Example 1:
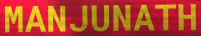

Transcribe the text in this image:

MANJUNATH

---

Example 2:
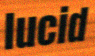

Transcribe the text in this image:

lucid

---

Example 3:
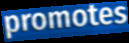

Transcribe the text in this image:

promotes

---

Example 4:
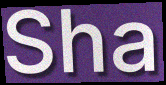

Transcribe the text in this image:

Sha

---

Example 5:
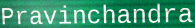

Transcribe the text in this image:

Pravinchandra